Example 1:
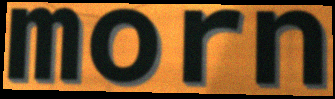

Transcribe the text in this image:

morn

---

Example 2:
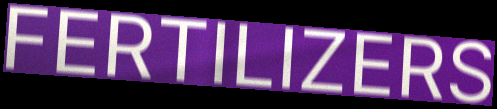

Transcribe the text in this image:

FERTILIZERS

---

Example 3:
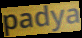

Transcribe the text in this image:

padya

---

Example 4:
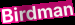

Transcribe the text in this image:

Birdman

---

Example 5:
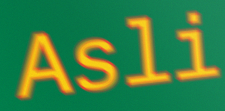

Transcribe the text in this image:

Asli